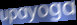
upayoga